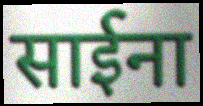
साईना